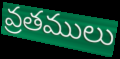
వ్రతములు